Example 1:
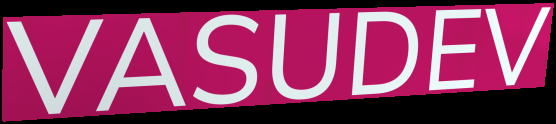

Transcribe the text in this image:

VASUDEV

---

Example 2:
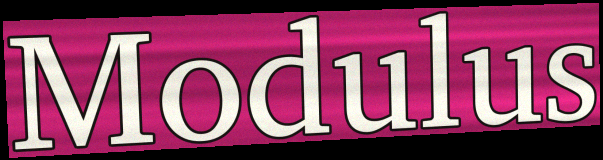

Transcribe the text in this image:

Modulus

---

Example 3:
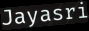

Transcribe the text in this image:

Jayasri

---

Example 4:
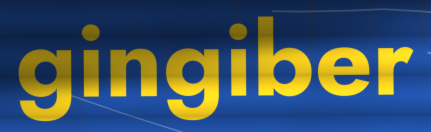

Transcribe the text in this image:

gingiber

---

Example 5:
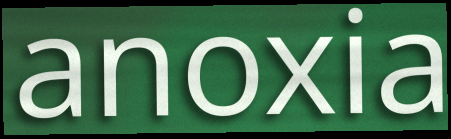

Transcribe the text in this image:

anoxia